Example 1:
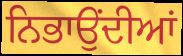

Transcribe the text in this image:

ਨਿਭਾਉਂਦੀਆਂ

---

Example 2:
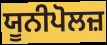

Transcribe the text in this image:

ਯੂਨੀਪੋਲਜ਼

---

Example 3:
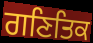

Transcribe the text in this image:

ਗਣਿਤਿਕ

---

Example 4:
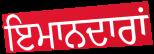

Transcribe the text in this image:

ਇਮਾਨਦਾਰਾਂ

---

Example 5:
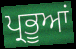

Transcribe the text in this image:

ਪ੍ਰਭੂਆਂ